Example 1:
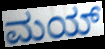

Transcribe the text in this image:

ಮಯ್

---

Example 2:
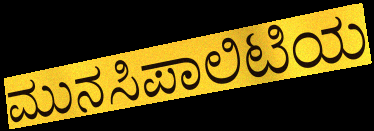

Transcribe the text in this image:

ಮುನಸಿಪಾಲಿಟಿಯ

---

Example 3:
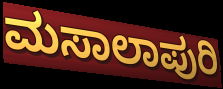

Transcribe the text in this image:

ಮಸಾಲಾಪುರಿ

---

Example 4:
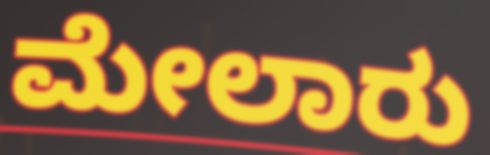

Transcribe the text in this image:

ಮೇಲಾರು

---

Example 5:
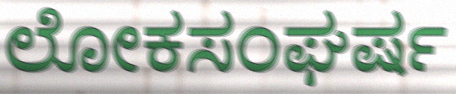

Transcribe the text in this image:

ಲೋಕಸಂಘರ್ಷ